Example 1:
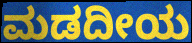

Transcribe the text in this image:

ಮಡದೀಯ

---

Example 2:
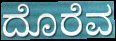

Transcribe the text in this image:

ದೊರೆವ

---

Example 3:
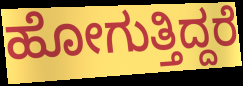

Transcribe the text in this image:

ಹೋಗುತ್ತಿದ್ದರೆ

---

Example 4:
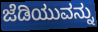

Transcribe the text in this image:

ಜೆಡಿಯುವನ್ನು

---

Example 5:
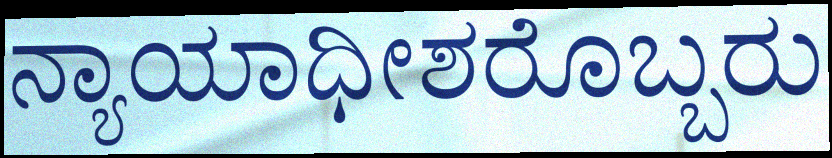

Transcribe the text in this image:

ನ್ಯಾಯಾಧೀಶರೊಬ್ಬರು